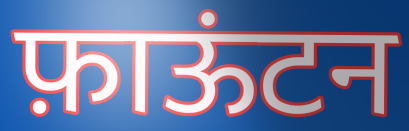
फ़ाऊंटन